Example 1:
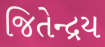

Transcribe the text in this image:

જિતેન્દ્રય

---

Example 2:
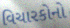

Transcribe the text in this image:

વિચારકોનો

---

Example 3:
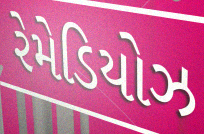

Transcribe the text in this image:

રેમેડિયોઝ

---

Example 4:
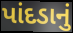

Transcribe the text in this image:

પાંદડાનું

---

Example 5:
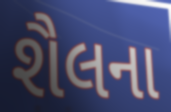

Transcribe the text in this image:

શૈલના